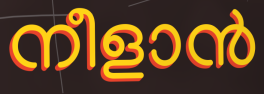
നീളാൻ